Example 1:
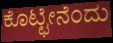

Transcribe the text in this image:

ಕೊಟ್ಟೇನೆಂದು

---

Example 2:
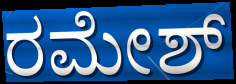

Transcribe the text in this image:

ರಮೇಶ್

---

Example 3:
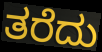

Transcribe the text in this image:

ತರೆದು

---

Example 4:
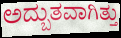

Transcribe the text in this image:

ಅದ್ಬುತವಾಗಿತ್ತು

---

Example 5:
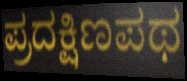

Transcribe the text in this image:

ಪ್ರದಕ್ಷಿಣಪಥ